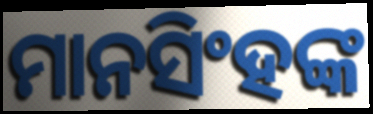
ମାନସିଂହଙ୍କ